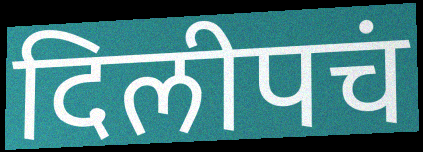
दिलीपचं